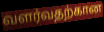
வளர்வதற்கான